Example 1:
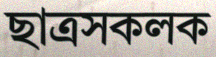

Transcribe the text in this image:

ছাত্ৰসকলক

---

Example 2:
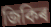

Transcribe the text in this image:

জিকিৰ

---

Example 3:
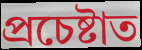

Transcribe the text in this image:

প্ৰচেষ্টাত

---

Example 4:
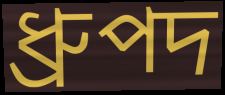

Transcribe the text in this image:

ধ্ৰুপদ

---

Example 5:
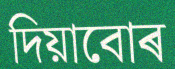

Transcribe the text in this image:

দিয়াবোৰ